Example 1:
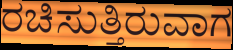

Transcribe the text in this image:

ರಚಿಸುತ್ತಿರುವಾಗ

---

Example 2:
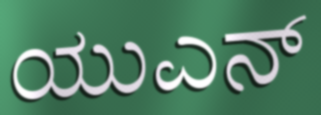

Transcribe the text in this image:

ಯುಎನ್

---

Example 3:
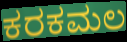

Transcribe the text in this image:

ಕರಕಮಲ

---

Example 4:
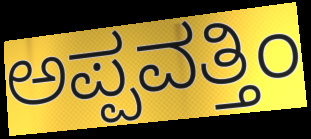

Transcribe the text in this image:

ಅಪ್ಪವತ್ತಿಂ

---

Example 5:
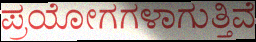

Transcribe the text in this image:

ಪ್ರಯೋಗಗಳಾಗುತ್ತಿವೆ